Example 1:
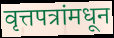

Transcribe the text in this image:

वृत्तपत्रांमधून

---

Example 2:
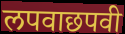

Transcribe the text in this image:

लपवाछपवी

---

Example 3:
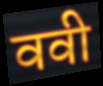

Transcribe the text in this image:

ववी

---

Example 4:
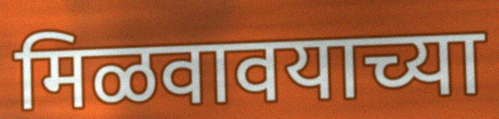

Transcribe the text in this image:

मिळवावयाच्या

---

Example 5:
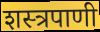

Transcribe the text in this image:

शस्त्रपाणी